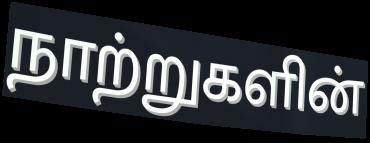
நாற்றுகளின்